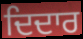
ਦਿਦਾਰ